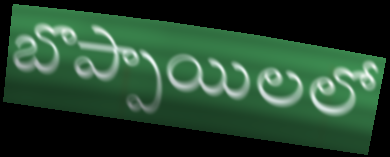
బొప్పాయిలలో